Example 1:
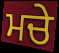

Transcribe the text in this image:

ਮਚੇ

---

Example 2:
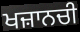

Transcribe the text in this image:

ਖਜ਼ਾਨਚੀ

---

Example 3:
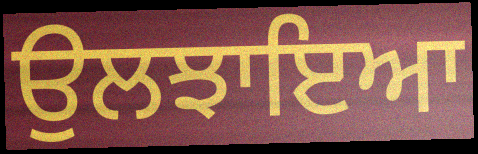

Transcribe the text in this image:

ਉਲਝਾਇਆ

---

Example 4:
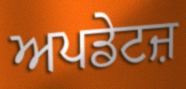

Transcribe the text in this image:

ਅਪਡੇਟਜ਼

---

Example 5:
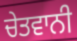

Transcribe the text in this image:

ਚੇਤਵਾਨੀ